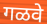
गळवे